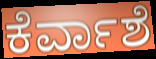
ಕೆರ್ವಾಶೆ